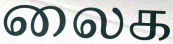
லைக